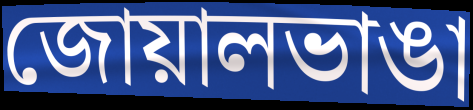
জোয়ালভাঙা